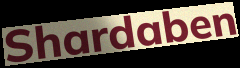
Shardaben